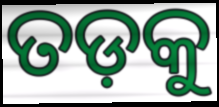
ତଡ଼କୁ